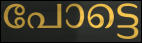
പോട്ടെ